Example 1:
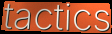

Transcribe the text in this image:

tactics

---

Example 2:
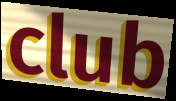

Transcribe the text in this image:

club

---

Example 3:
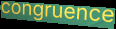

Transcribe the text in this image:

congruence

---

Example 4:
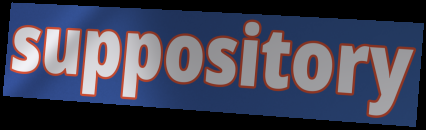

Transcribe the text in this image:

suppository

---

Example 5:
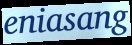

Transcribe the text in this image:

eniasang